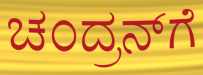
ಚಂದ್ರನ್‌ಗೆ